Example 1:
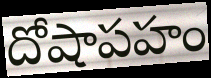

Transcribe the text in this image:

దోషాపహం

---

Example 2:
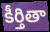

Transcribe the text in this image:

కీర్తితా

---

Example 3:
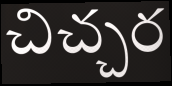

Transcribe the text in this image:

చిచ్చర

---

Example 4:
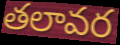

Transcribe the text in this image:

తలావర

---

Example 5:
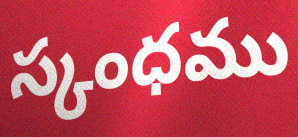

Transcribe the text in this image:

స్కంధము